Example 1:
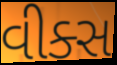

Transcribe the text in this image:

વીક્સ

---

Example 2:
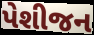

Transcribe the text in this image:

પેશીજન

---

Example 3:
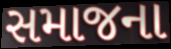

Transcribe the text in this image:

સમાજના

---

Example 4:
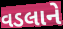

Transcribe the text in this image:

વડલાને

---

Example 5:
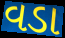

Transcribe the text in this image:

વડા